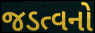
જડત્વનો